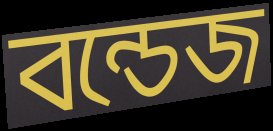
বন্ডেজ